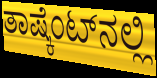
ತಾಷ್ಕೆಂಟ್‌ನಲ್ಲಿ